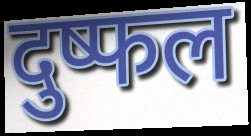
दुष्फल